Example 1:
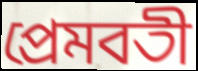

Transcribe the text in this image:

প্রেমবতী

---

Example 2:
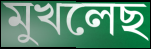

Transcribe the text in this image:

মুখলেছ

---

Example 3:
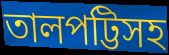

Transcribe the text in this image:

তালপট্টিসহ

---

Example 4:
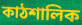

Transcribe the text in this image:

কাঠশালিক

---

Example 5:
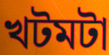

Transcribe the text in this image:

খটমটা